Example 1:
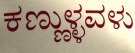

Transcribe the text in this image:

ಕಣ್ಣುಳ್ಳವಳು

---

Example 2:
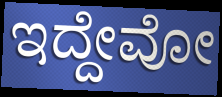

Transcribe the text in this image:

ಇದ್ದೇವೋ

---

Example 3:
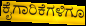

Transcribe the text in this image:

ಕೈಗಾರಿಕೆಗಳಿಗೂ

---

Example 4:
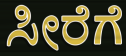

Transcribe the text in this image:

ಸೀರೆಗೆ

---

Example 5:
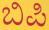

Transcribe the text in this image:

ಬಿಪಿ